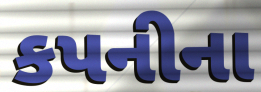
કપનીના